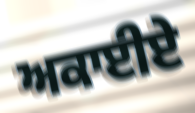
ਅਕਾਈਏ